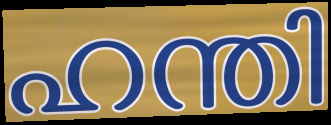
ഹന്തി